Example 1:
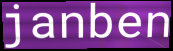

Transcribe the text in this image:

janben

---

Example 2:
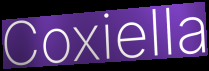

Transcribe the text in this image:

Coxiella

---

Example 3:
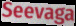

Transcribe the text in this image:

Seevaga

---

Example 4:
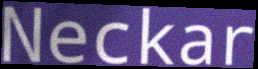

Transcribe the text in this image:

Neckar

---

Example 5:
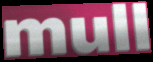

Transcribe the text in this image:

mull